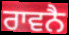
ਰਾਵਨੈ